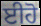
ਈਹੋ